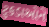
ટુકડાઓને